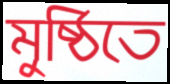
মুষ্ঠিতে